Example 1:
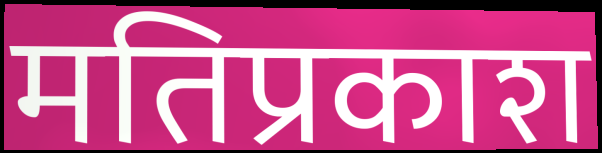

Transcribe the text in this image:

मतिप्रकाश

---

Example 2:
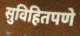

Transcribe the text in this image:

सुविहितपणे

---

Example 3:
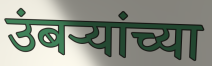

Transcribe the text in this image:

उंबऱ्यांच्या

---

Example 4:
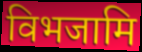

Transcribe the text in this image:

विभजामि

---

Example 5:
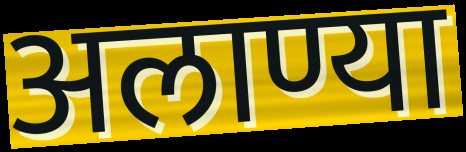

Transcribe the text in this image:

अलाण्या